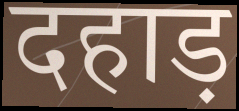
दहाड़